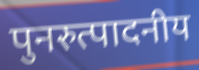
पुनरुत्पादनीय